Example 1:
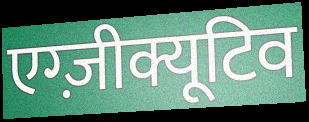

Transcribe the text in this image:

एग्ज़ीक्यूटिव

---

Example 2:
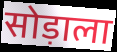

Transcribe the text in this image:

सोड़ाला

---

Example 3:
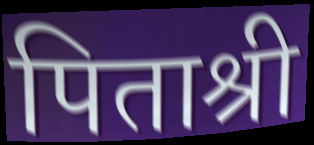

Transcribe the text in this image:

पिताश्री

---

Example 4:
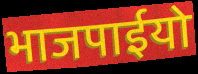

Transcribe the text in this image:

भाजपाईयो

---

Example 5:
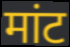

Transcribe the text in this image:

मांट